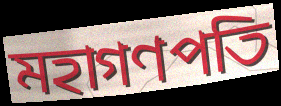
মহাগণপতি